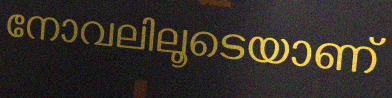
നോവലിലൂടെയാണ്